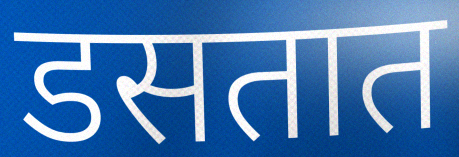
डसतात